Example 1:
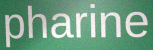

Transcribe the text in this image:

pharine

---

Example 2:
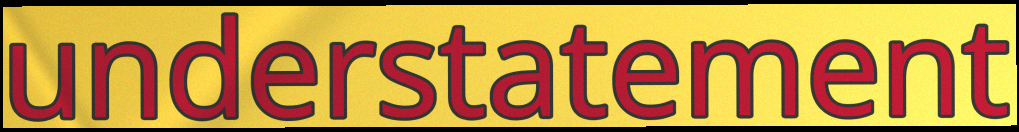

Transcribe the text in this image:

understatement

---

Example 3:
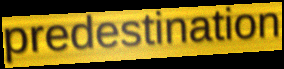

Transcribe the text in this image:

predestination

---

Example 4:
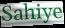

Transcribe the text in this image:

Sahiye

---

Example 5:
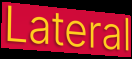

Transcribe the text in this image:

Lateral